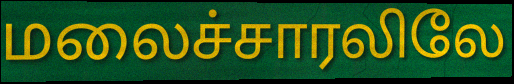
மலைச்சாரலிலே